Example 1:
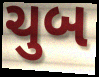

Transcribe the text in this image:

ચુબ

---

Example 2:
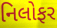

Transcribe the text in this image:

નિલોફર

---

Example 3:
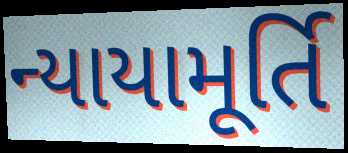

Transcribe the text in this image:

ન્યાયામૂર્તિ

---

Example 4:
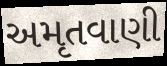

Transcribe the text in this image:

અમૃતવાણી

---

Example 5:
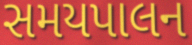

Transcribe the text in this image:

સમયપાલન